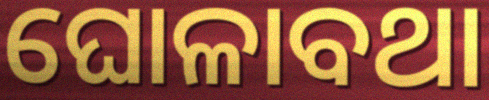
ଘୋଳାବଥା